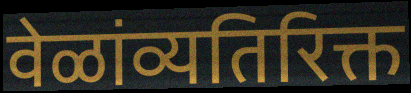
वेळांव्यतिरिक्त